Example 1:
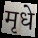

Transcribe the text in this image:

मृधे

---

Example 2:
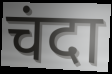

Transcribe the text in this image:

चंदा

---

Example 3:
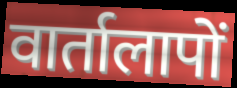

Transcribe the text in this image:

वार्तालापों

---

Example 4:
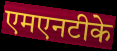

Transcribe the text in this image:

एमएनटीके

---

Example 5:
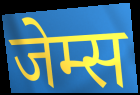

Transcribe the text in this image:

जेम्स